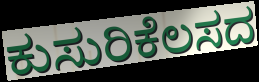
ಕುಸುರಿಕೆಲಸದ